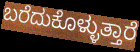
ಬರೆದುಕೊಳ್ಳುತ್ತಾರೆ